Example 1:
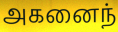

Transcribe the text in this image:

அகனைந்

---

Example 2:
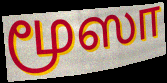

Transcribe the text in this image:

மூஸா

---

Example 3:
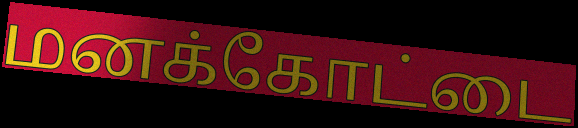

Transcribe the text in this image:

மனக்கோட்டை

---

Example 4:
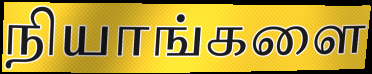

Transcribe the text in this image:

நியாங்களை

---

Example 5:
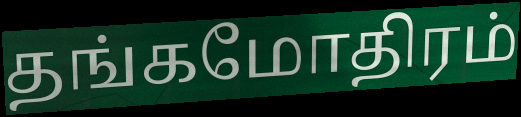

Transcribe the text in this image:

தங்கமோதிரம்